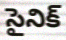
సైనిక్